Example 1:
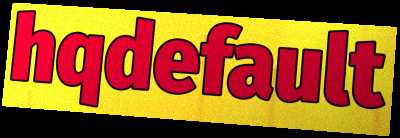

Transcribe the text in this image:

hqdefault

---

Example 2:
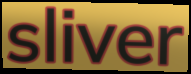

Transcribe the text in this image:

sliver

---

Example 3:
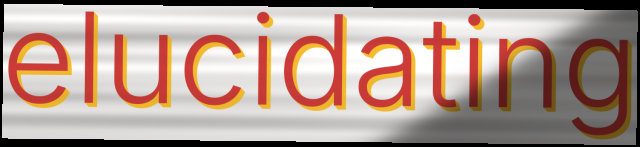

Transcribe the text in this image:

elucidating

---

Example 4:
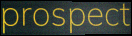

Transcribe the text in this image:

prospect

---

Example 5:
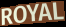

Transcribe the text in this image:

ROYAL